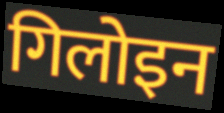
गिलोइन